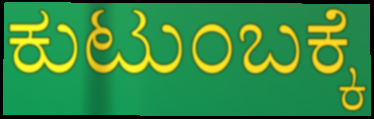
ಕುಟುಂಬಕ್ಕೆ